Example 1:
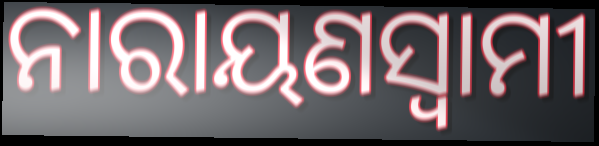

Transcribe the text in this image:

ନାରାୟଣସ୍ଵାମୀ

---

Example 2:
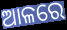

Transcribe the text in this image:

ଆଳରେ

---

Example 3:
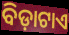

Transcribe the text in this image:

ବିଡ଼ାଟାଏ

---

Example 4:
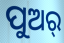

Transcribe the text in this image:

ପୁଅର୍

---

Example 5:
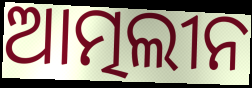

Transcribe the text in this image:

ଆତ୍ମଲୀନ